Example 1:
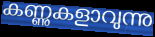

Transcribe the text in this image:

കണ്ണുകളാവുന്നു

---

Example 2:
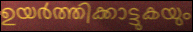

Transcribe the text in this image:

ഉയർത്തിക്കാട്ടുകയും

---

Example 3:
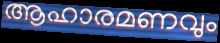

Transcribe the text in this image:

ആഹാരമണവും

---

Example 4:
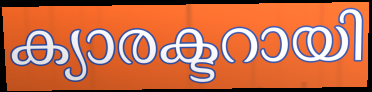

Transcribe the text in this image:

ക്യാരക്ടറായി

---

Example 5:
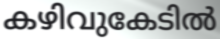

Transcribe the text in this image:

കഴിവുകേടിൽ